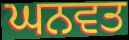
ਘਨਵਤ